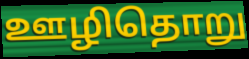
ஊழிதொறு